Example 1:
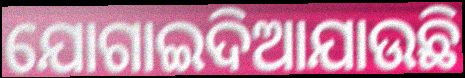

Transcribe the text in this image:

ଯୋଗାଇଦିଆଯାଉଛି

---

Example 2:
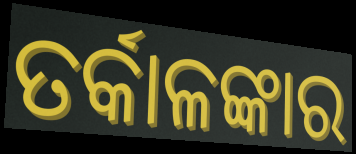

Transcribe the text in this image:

ତର୍କାଳଙ୍କାର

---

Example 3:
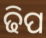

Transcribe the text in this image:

ଢିପ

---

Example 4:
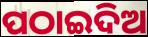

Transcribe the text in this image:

ପଠାଇଦିଅ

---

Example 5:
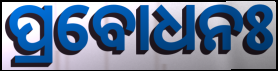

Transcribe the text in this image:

ପ୍ରବୋଧନଃ